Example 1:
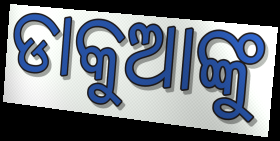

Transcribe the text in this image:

ଡାକୁଆଙ୍କୁ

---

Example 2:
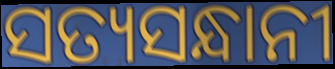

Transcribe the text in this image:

ସତ୍ୟସନ୍ଧାନୀ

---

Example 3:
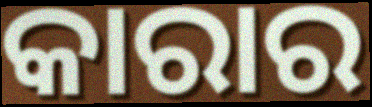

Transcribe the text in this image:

କାରାର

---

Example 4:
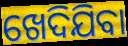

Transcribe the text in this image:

ଖେଦିଯିବା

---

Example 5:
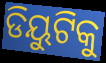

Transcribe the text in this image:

ଡିୟୁଟିକୁ